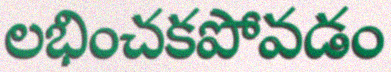
లభించకపోవడం